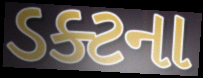
ડક્ટના